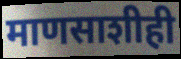
माणसाशीही